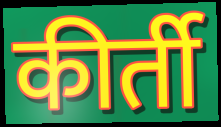
कीर्ती